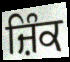
ਜ਼ਿੰਕ